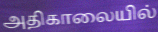
அதிகாலையில்